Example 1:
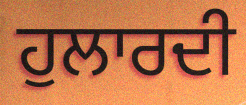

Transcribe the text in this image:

ਹੁਲਾਰਦੀ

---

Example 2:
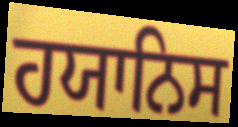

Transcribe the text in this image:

ਹਯਾਨਿਸ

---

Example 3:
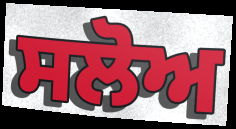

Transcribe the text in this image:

ਸਲੋਅ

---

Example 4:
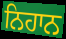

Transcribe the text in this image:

ਨਿਹਾਨ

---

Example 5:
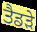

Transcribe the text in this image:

ਤੈਡੜੇ